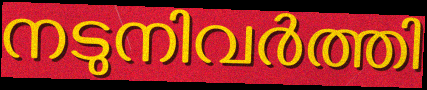
നടുനിവർത്തി